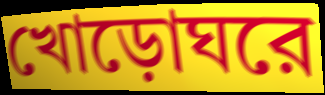
খোড়োঘরে